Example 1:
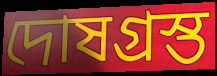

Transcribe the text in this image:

দোষগ্রস্ত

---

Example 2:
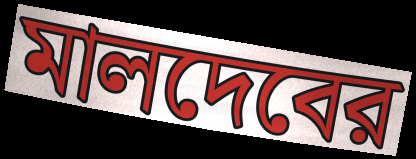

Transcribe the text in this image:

মালদেবের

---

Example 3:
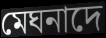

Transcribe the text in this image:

মেঘনাদে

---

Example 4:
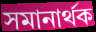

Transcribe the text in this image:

সমানার্থক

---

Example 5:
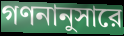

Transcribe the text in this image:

গণনানুসারে